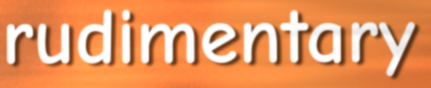
rudimentary